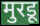
मुरडू